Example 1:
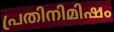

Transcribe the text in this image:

പ്രതിനിമിഷം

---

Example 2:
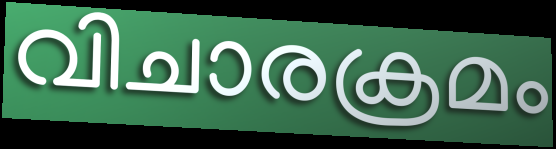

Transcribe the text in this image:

വിചാരക്രമം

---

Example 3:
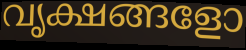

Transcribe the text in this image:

വൃക്ഷങ്ങളോ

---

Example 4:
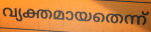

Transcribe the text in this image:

വ്യക്തമായതെന്ന്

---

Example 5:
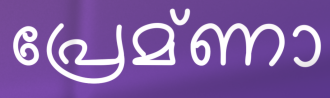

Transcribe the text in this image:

പ്രേമ്ണാ